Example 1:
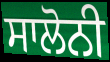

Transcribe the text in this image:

ਸਾਲੋਨੀ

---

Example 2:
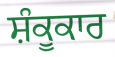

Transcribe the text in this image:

ਸ਼ੰਕੂਕਾਰ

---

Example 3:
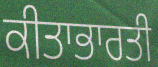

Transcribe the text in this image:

ਕੀਤਾਭਾਰਤੀ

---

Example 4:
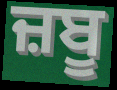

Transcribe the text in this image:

ਜ਼ਬੂ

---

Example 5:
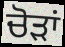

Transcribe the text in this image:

ਚੋੜਾਂ